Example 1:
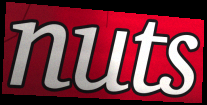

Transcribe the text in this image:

nuts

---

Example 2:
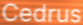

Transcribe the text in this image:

Cedrus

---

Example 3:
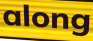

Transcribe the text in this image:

along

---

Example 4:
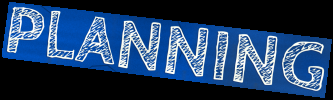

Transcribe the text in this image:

PLANNING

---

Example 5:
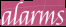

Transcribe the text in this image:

alarms